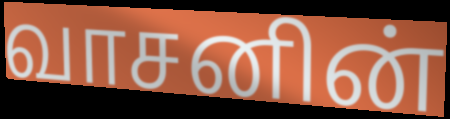
வாசனின்